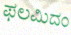
ಫಲಮಿದಂ